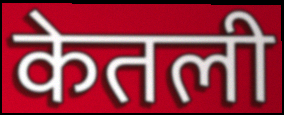
केतली